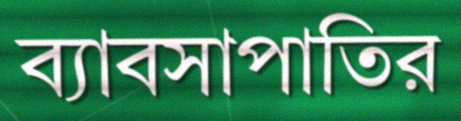
ব্যাবসাপাতির